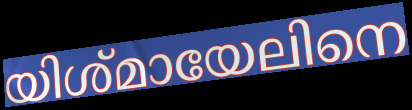
യിശ്മായേലിനെ